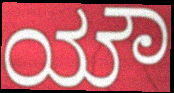
ಯೌ